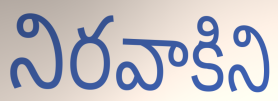
నిరవాకిని